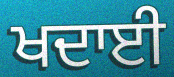
ਖਦਾਈ